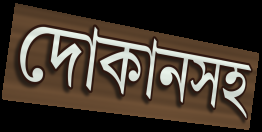
দোকানসহ